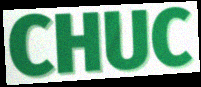
CHUC